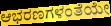
ಆಭರಣಗಳಂತೆಯೇ